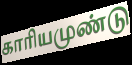
காரியமுண்டு